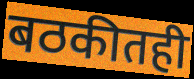
बठकीतही